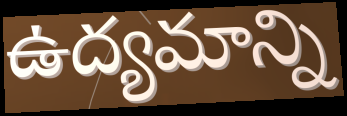
ఉద్యమాన్ని